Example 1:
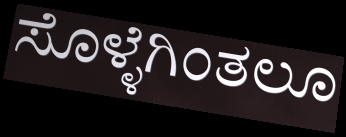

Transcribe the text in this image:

ಸೊಳ್ಳೆಗಿಂತಲೂ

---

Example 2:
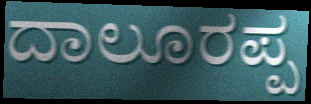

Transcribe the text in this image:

ದಾಲೂರಪ್ಪ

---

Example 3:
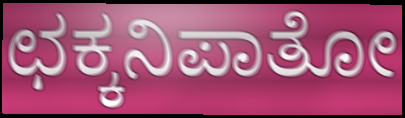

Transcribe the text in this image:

ಛಕ್ಕನಿಪಾತೋ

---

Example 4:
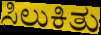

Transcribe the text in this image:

ಸಿಲುಕಿತು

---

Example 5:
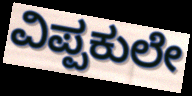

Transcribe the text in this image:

ವಿಪ್ಪಕುಲೇ